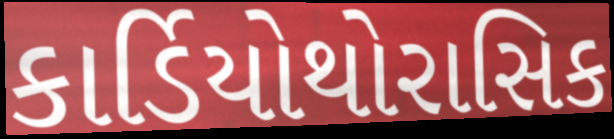
કાર્ડિયોથોરાસિક